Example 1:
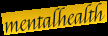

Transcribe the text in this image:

mentalhealth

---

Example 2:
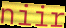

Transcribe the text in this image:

niir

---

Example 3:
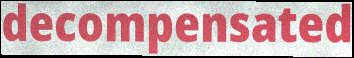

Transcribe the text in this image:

decompensated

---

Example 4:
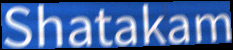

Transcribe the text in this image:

Shatakam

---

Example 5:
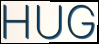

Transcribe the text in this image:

HUG